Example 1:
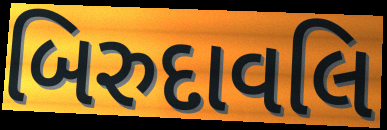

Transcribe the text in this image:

બિરુદાવલિ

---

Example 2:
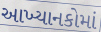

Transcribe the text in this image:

આખ્યાનકોમાં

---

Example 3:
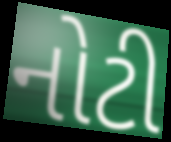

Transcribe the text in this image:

નોટી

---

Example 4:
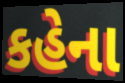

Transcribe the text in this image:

કહેના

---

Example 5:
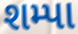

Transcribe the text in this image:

શમ્પા